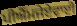
ਪੀਐੱਮਜੇਏਵਾਈ